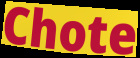
Chote